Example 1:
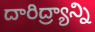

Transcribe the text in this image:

దారిద్ర్యాన్ని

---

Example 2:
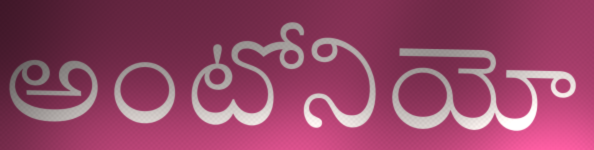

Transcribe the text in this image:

అంటోనియో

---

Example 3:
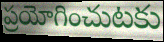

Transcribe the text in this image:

ప్రయోగించుటకు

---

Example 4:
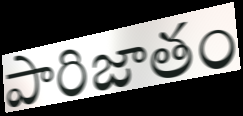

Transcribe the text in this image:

పారిజాతం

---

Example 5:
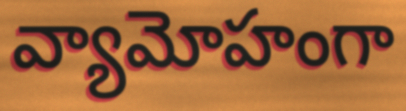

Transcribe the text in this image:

వ్యామోహంగా